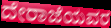
ದೇರಾಜೆಯವರ